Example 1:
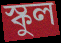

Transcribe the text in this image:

স্কুল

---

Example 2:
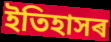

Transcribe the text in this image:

ইতিহাসৰ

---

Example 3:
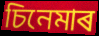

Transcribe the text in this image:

চিনেমাৰ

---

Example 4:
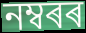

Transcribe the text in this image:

নম্বৰৰ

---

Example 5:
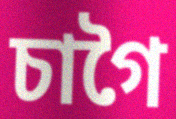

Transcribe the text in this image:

চাগৈ